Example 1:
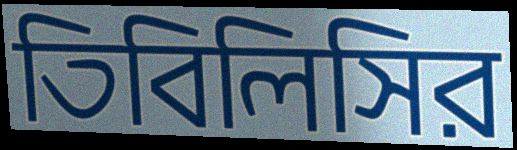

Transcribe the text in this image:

তিবিলিসির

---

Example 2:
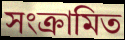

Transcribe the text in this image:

সংক্রামিত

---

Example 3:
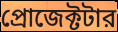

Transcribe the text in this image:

প্রোজেক্টটার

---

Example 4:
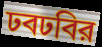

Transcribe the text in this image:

ঢবঢবির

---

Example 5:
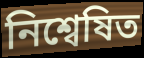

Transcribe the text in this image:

নিশ্বেষিত